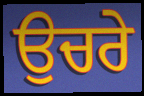
ਉਚਰੇ